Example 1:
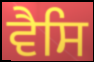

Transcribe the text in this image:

ਵੈਸਿ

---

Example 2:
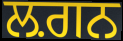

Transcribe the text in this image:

ਲ਼ਗਨ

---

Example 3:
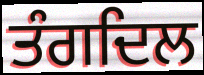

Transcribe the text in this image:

ਤੰਗਦਿਲ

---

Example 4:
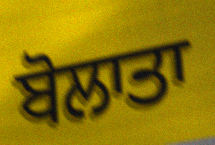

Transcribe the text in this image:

ਬੋਲਾਤਾ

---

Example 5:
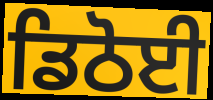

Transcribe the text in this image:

ਡਿਠੋਈ